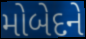
મોબેદને